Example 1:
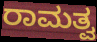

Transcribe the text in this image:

ರಾಮತ್ವ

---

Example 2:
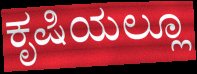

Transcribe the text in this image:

ಕೃಷಿಯಲ್ಲೂ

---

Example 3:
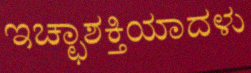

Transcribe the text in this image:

ಇಚ್ಛಾಶಕ್ತಿಯಾದಳು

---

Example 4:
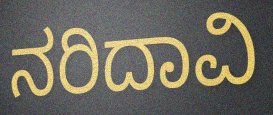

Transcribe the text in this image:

ನರಿದಾವಿ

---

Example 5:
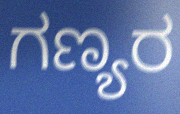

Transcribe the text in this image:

ಗಣ್ಯರ